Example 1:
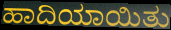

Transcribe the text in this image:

ಹಾದಿಯಾಯಿತು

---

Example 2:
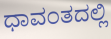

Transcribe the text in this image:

ಧಾವಂತದಲ್ಲಿ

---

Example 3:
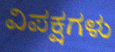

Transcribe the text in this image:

ವಿಪಕ್ಷಗಳು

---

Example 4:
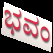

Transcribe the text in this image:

ಭವಂ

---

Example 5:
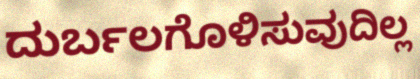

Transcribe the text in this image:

ದುರ್ಬಲಗೊಳಿಸುವುದಿಲ್ಲ